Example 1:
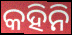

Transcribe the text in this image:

କହିନି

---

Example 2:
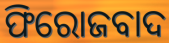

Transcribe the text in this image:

ଫିରୋଜବାଦ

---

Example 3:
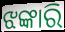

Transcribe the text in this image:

ଝଙ୍କାରି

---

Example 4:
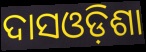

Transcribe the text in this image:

ଦାସଓଡ଼ିଶା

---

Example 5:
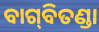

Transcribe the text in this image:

ବାଗ୍‍ବିତଣ୍ଡା